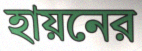
হায়নের